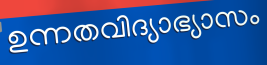
ഉന്നതവിദ്യാഭ്യാസം